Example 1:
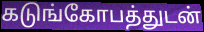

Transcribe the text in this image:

கடுங்கோபத்துடன்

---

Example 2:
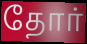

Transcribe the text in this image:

தோர்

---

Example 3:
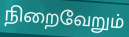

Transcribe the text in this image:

நிறைவேறும்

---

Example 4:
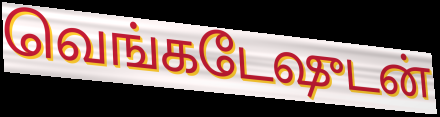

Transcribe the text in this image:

வெங்கடேஷுடன்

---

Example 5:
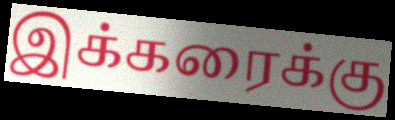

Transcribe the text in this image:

இக்கரைக்கு